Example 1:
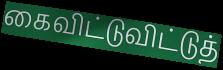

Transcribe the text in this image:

கைவிட்டுவிட்டுத்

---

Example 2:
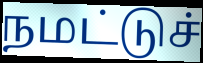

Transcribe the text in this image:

நமட்டுச்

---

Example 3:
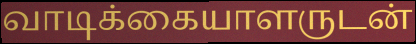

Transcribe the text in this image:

வாடிக்கையாளருடன்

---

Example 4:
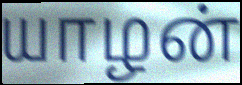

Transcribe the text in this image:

யாழன்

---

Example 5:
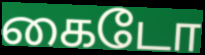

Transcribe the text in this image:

கைடோ